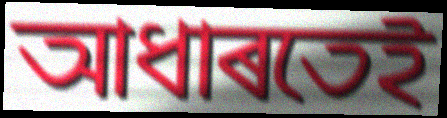
আধাৰতেই